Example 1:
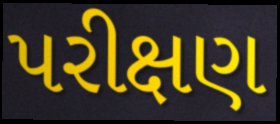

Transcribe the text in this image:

પરીક્ષણ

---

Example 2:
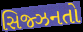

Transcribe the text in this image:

સિજ્ઝનતો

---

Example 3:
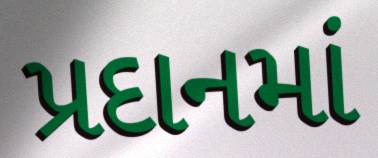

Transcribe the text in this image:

પ્રદાનમાં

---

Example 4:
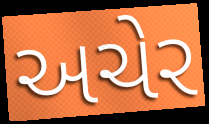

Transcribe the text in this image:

અચેર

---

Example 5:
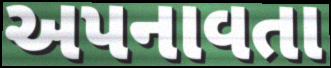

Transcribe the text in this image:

અપનાવતા